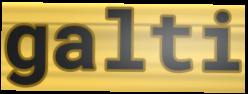
galti